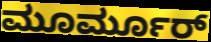
ಮೂರ್ಮೂರ್